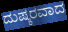
ದುಷ್ಕರವಾದ